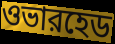
ওভারহেড